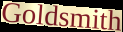
Goldsmith